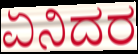
ಏನಿದರ